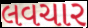
લવચાર